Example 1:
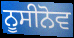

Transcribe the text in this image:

ਨੂਸੀਨੋਵ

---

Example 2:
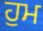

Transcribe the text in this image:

ਹੁਮ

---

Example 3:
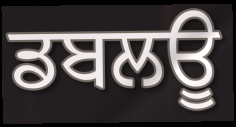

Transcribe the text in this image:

ਡਬਲਊ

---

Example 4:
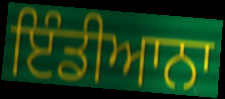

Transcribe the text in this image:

ਇੰਡੀਆਨਾ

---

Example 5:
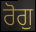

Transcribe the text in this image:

ਰੋਗੁ